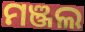
ମଞ୍ଜଲ